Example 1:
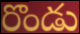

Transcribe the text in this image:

రొండు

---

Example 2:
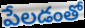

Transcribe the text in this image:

పేలడంతో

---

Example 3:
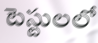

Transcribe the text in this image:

టెస్టులలో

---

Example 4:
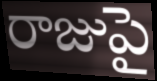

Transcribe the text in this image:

రాజుపై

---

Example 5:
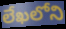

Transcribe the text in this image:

లేఖలోని